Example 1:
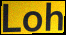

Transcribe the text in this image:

Loh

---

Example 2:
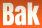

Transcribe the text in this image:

Bak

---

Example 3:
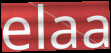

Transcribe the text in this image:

elaa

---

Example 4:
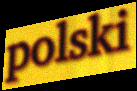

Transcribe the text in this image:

polski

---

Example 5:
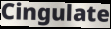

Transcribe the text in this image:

Cingulate